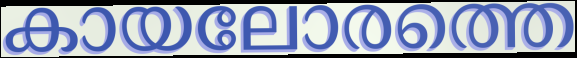
കായലോരത്തെ